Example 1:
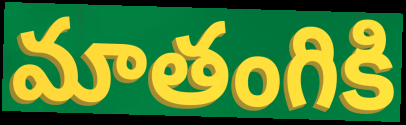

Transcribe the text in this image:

మాతంగికి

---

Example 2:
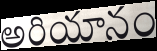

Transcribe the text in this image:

అరియానం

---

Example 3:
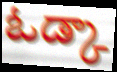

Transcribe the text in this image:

ఓడ్కా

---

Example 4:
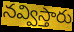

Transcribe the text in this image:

నవ్విస్తారు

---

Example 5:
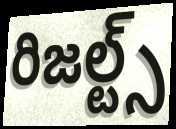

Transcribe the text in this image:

రిజల్ట్స్